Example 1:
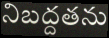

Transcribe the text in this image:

నిబద్దతను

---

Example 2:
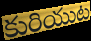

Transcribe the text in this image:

కురియుట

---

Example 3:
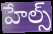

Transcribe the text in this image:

హేల్స్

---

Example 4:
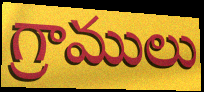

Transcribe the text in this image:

గ్రాములు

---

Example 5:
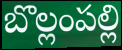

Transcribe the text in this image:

బొల్లంపల్లి